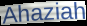
Ahaziah